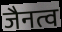
जैनत्व